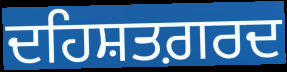
ਦਹਿਸ਼ਤਗ਼ਰਦ